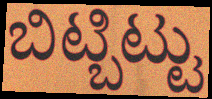
ಬಿಟ್ಬಿಟ್ಟು